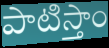
పాటిస్తాం